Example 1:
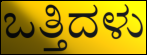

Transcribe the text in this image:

ಒತ್ತಿದಳು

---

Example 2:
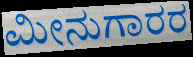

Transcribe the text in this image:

ಮೀನುಗಾರರ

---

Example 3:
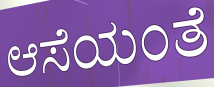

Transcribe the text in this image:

ಆಸೆಯಂತೆ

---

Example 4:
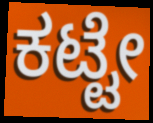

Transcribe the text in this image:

ಕಟ್ಟೇ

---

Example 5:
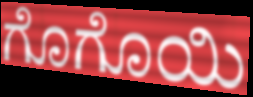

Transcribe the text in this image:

ಗೊಗೊಯಿ